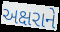
અક્ષરાને